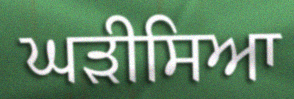
ਘੜੀਸਿਆ